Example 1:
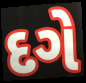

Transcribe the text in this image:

દગે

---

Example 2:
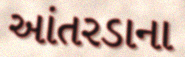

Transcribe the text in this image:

આંતરડાના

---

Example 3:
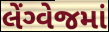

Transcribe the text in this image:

લેંગ્વેજમાં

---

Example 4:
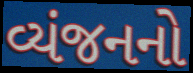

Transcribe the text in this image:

વ્યંજનનો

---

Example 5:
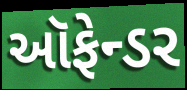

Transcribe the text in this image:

ઑફેન્ડર